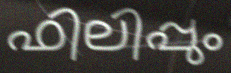
ഫിലിപ്പും